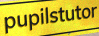
pupilstutor